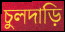
চুলদাড়ি